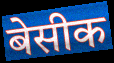
बेसीक